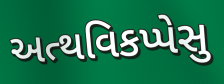
અત્થવિકપ્પેસુ